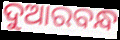
ଦୁଆରବନ୍ଧ